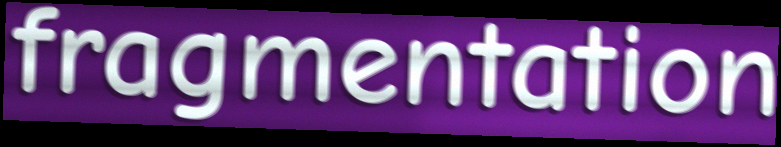
fragmentation